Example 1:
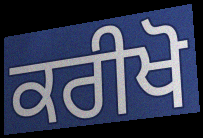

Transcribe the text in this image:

ਕਰੀਖੋ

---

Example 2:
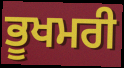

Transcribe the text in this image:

ਭੂਖਮਰੀ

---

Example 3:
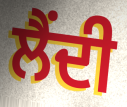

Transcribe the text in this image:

ਲੈਂਦੀ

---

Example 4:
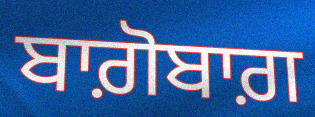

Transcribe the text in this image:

ਬਾਗ਼ੋਬਾਗ਼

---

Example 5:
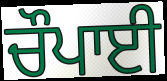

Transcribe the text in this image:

ਚੌਪਾਈ